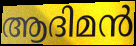
ആദിമൻ